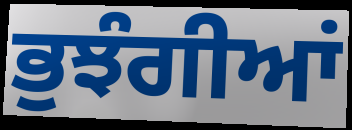
ਭੁਝੰਗੀਆਂ